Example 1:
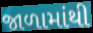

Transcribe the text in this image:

જાળામાંથી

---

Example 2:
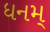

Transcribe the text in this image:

ધનમ્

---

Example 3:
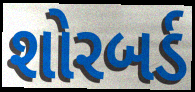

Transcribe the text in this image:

શોરબર્ડ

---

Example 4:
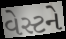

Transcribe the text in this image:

વેસ્ટને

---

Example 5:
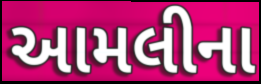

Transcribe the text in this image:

આમલીના